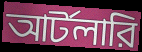
আর্টলারি